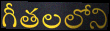
గీతలలోని